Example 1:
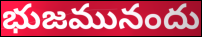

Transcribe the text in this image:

భుజమునందు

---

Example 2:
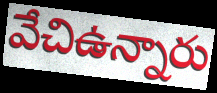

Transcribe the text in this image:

వేచిఉన్నారు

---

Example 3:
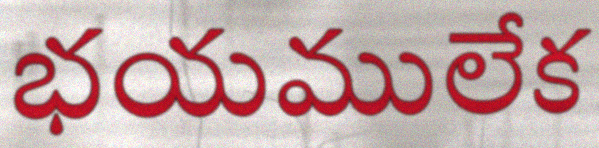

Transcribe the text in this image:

భయములేక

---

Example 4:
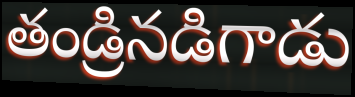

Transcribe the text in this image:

తండ్రినడిగాడు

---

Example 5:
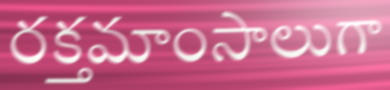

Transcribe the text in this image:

రక్తమాంసాలుగా